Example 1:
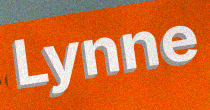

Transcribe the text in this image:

Lynne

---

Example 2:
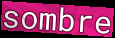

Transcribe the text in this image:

sombre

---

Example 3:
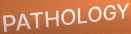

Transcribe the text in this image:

PATHOLOGY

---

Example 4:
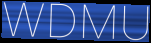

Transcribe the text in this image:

WDMU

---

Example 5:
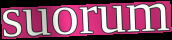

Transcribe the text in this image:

suorum